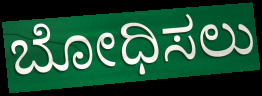
ಬೋಧಿಸಲು